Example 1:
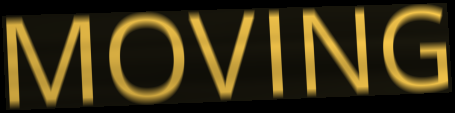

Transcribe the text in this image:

MOVING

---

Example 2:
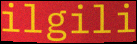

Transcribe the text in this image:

ilgili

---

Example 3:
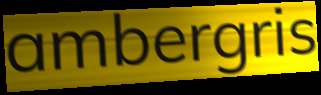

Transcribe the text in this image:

ambergris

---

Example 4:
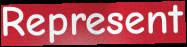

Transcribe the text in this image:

Represent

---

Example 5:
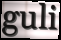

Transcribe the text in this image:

guli